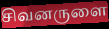
சிவனருளை